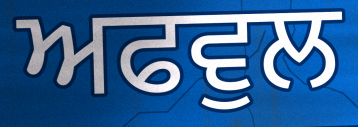
ਅਫਵੁਲ